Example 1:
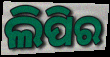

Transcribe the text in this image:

ଲିପିର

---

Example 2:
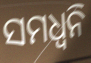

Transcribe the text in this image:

ସମଧ୍ୱନି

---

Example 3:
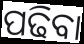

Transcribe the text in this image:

ପଢିବା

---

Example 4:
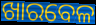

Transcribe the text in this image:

ଖାରବେଳ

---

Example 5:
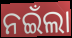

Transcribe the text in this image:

ନଇଁଲା